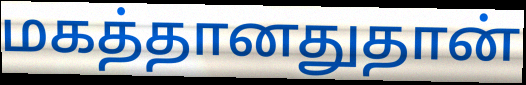
மகத்தானதுதான்